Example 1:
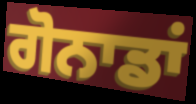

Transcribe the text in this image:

ਗੋਨਾਡਾਂ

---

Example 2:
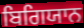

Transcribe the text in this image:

ਬਿਗਿਯਾਨ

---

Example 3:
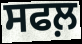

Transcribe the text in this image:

ਸਫਲ਼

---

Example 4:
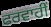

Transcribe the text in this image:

ਫਰਵਾਹੀਂ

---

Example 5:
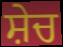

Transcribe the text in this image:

ਸ਼ੇਚ